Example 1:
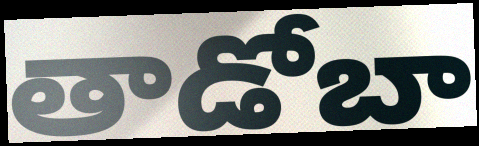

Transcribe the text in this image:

తాడోబా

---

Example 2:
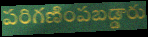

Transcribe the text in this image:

పరిగణింపబడ్డారు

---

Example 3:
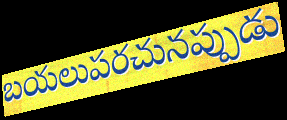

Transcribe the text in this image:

బయలుపరచునప్పుడు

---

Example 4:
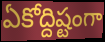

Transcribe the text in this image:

ఏకోద్దిష్టంగా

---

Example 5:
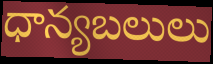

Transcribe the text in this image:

ధాన్యబలులు